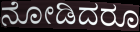
ನೋಡಿದರೂ